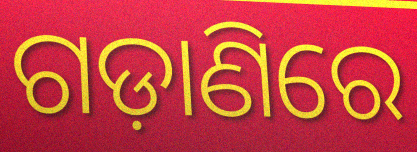
ଗଡ଼ାଣିରେ